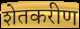
शेतकरीण